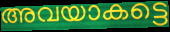
അവയാകട്ടെ